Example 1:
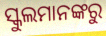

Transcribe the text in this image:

ସ୍କୁଲମାନଙ୍କରୁ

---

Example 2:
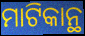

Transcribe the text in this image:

ମାଟିକାନ୍ଥ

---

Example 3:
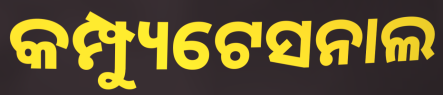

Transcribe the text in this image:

କମ୍ପ୍ୟୁଟେସନାଲ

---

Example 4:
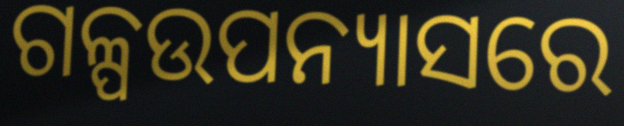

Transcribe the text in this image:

ଗଳ୍ପଉପନ୍ୟାସରେ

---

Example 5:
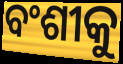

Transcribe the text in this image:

ବଂଶୀକୁ